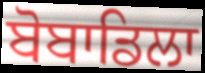
ਬੋਬਾਡਿਲਾ